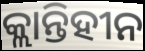
କ୍ଲାନ୍ତିହୀନ